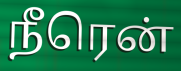
நீரென்